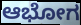
ಆಭೋಗ